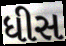
ધીસ